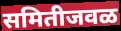
समितीजवळ